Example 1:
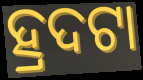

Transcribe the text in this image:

ହ୍ରଦଟା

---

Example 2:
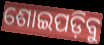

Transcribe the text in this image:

ଶୋଇପଡ଼ିବୁ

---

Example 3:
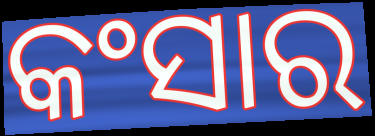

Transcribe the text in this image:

କଂସାର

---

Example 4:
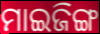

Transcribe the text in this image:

ମାଇଜିଙ୍ଗ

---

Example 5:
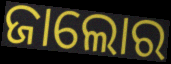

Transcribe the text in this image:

ଜାଲୋର